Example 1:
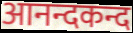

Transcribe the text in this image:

आनन्दकन्द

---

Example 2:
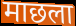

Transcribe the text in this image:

माछला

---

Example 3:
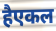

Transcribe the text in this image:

हैएकल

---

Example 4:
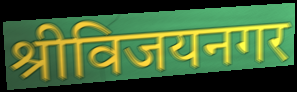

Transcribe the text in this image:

श्रीविजयनगर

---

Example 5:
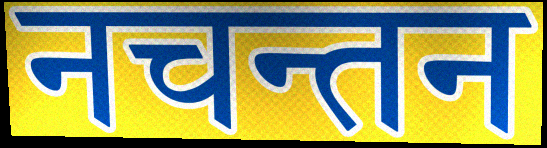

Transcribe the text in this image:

नचन्तन